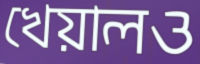
খেয়ালও